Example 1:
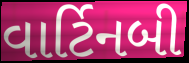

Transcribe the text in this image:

વાર્ટિનબી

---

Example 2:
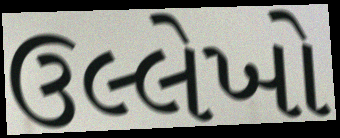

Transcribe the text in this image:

ઉલ્લેખો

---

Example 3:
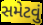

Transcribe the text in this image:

સમેટવું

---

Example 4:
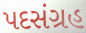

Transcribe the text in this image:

પદસંગ્રહ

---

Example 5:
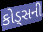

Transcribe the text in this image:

કોડ્સની